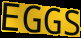
EGGS